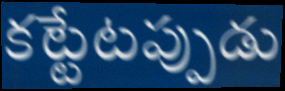
కట్టేటప్పుడు